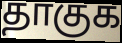
தாகுக